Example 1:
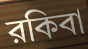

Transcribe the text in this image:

রকিবা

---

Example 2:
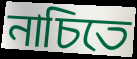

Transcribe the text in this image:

নাচিতে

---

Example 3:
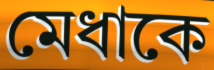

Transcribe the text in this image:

মেধাকে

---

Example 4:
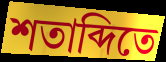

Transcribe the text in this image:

শতাব্দিতে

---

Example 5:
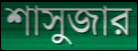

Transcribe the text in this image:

শাসুজার